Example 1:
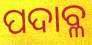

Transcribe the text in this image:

ପଦାବ୍ଳ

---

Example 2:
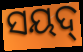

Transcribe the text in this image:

ସୟଦ୍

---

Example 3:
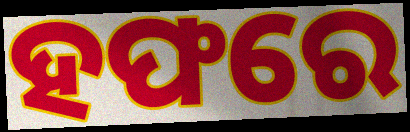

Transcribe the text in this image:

ହଫରେ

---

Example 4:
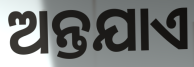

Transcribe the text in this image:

ଅନ୍ତଯାଏ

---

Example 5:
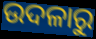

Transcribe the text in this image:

ଉଦଳାରୁ